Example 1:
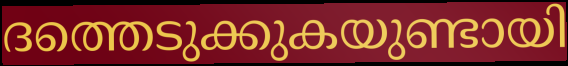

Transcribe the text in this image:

ദത്തെടുക്കുകയുണ്ടായി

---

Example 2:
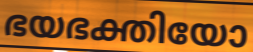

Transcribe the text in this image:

ഭയഭക്തിയോ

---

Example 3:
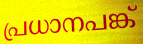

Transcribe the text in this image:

പ്രധാനപങ്ക്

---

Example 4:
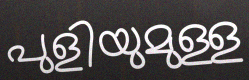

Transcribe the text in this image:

പുളിയുമുള്ള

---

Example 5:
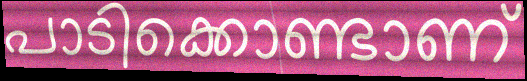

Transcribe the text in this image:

പാടിക്കൊണ്ടാണ്